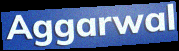
Aggarwal